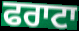
ਫਰਾਟਾ